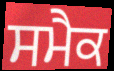
ਸਮੈਕ